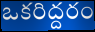
ఒకరిద్దరం